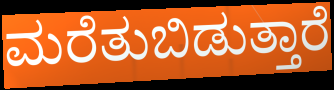
ಮರೆತುಬಿಡುತ್ತಾರೆ